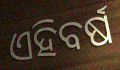
ଏହିବର୍ଷ